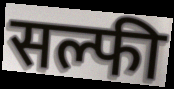
सल्फी